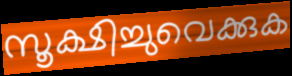
സൂക്ഷിച്ചുവെക്കുക